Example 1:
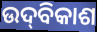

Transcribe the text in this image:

ଉଦ୍‌ବିକାଶ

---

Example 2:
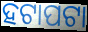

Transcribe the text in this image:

ହଟାପଟା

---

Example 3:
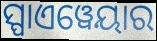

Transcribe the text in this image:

ସ୍ପାଏୱେୟାର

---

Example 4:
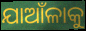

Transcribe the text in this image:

ଯାଆଁଳାକୁ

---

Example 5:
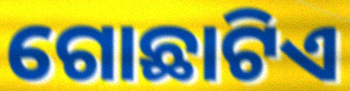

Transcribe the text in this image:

ଗୋଛାଟିଏ